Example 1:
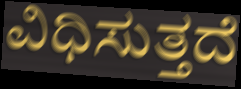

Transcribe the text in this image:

ವಿಧಿಸುತ್ತದೆ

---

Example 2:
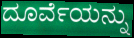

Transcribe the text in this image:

ದೂರ್ವೆಯನ್ನು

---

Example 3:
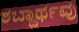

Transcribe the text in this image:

ಶಬ್ದಾರ್ಥವು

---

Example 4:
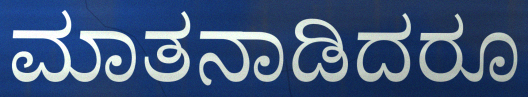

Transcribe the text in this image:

ಮಾತನಾಡಿದರೂ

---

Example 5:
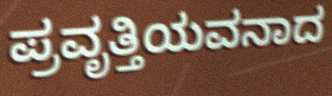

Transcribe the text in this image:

ಪ್ರವೃತ್ತಿಯವನಾದ